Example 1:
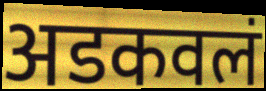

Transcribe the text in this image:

अडकवलं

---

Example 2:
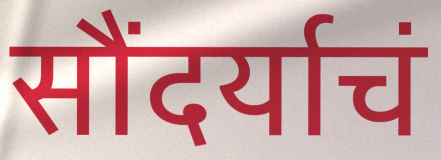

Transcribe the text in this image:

सौंदर्याचं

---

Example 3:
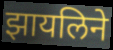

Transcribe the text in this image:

झायलिने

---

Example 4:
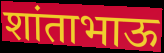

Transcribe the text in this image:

शांताभाऊ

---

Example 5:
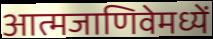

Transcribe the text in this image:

आत्मजाणिवेमध्यें